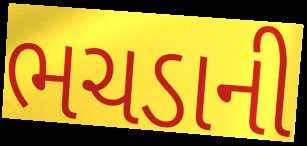
ભચડાની